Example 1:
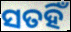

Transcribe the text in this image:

ସତହିଁ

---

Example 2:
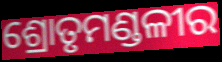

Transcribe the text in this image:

ଶ୍ରୋତୃମଣ୍ଡଳୀର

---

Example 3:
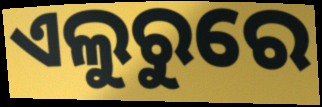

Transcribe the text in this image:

ଏଲୁରୁରେ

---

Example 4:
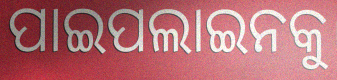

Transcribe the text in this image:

ପାଇପଲାଇନକୁ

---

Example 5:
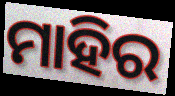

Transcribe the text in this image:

ମାହିର